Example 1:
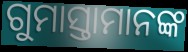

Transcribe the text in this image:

ଗୁମାସ୍ତାମାନଙ୍କ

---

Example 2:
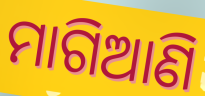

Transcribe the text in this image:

ମାଗିଆଣି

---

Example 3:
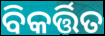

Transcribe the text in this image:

ବିକର୍ତ୍ତିତ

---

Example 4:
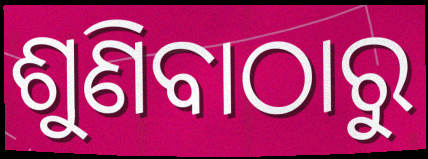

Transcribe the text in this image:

ଶୁଣିବାଠାରୁ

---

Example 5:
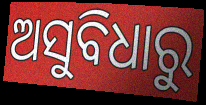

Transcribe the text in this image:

ଅସୁବିଧାରୁ